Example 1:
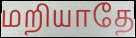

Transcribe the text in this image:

மறியாதே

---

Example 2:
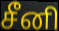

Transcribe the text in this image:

சீனி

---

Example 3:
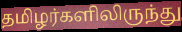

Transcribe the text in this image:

தமிழர்களிலிருந்து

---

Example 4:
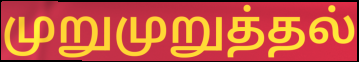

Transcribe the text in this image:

முறுமுறுத்தல்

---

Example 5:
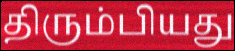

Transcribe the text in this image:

திரும்பியது